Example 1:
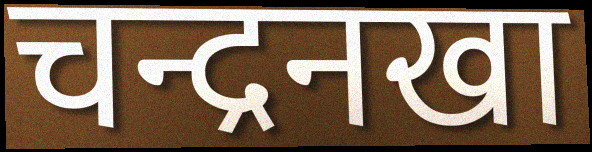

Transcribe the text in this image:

चन्द्रनखा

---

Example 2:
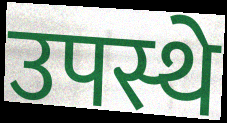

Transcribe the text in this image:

उपस्थे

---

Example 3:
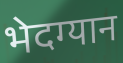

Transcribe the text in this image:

भेदग्यान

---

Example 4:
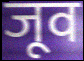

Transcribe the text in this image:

जूव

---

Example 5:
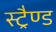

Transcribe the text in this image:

स्ट्रैण्ड